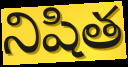
నిషిత